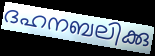
ദഹനബലിക്കു